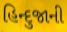
હિન્દુજાની